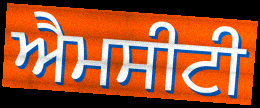
ਐਮਸੀਟੀ